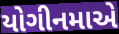
યોગીનમાએ